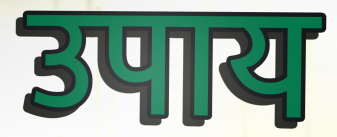
उपाय